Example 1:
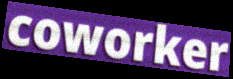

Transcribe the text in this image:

coworker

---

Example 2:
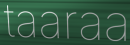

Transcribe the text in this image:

taaraa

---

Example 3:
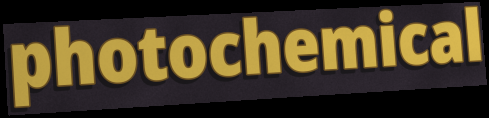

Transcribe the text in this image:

photochemical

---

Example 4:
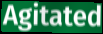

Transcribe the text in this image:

Agitated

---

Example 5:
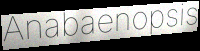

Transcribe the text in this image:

Anabaenopsis